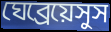
ঘেব্রেয়েসুস